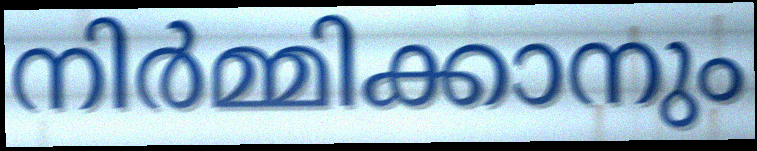
നിർമ്മിക്കാനും